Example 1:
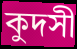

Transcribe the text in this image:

কুদসী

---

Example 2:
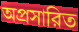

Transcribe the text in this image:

অপ্রসারিত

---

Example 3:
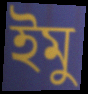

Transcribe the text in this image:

ইমু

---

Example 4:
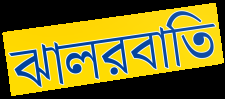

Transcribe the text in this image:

ঝালরবাতি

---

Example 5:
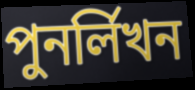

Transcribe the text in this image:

পুনর্লিখন